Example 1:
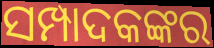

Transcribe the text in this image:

ସମ୍ପାଦକଙ୍କର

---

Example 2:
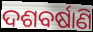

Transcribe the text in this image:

ଦଶବର୍ଷାଣି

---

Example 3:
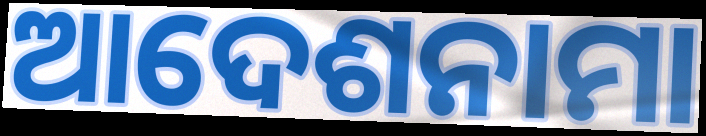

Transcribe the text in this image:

ଆଦେଶନାମା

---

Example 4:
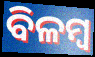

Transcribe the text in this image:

ବିଳମ୍ଵ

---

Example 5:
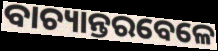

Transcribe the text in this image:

ବାଚ୍ୟାନ୍ତରବେଳେ